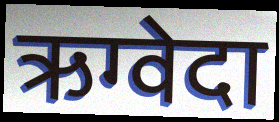
ऋग्वेदा